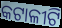
କଟାଳୀଟି